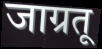
जाग्रतू